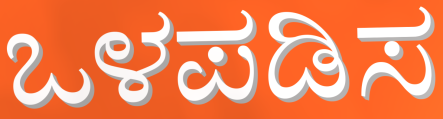
ಒಳಪಡಿಸ